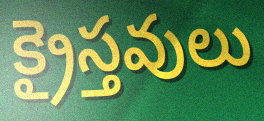
క్రైస్తవులు